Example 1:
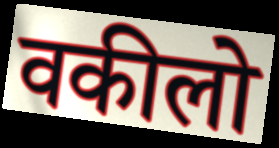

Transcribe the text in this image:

वकीलो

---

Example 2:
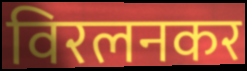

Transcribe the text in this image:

विरलनकर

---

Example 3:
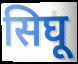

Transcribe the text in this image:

सिघू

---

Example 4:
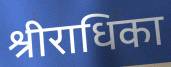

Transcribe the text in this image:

श्रीराधिका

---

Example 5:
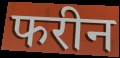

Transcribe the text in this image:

फरीन